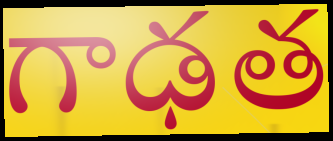
గాఢత